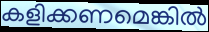
കളിക്കണമെങ്കിൽ